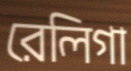
রেলিগা